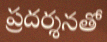
ప్రదర్శనతో